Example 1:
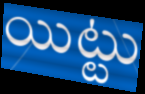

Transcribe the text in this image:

యిట్టు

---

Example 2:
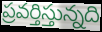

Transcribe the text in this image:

ప్రవర్తిస్తున్నది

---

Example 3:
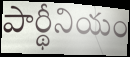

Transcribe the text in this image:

పార్థీనియం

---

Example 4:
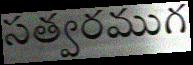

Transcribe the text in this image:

సత్వరముగ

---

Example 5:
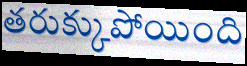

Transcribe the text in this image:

తరుక్కుపోయింది